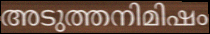
അടുത്തനിമിഷം